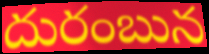
దురంబున